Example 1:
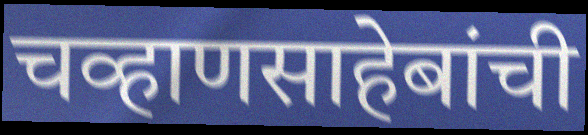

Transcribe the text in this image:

चव्हाणसाहेबांची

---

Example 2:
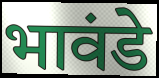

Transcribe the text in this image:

भावंडे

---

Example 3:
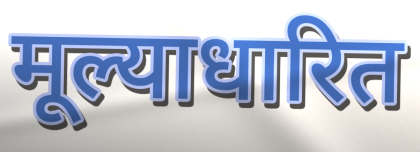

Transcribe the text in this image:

मूल्याधारित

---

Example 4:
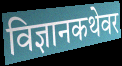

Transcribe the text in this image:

विज्ञानकथेवर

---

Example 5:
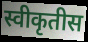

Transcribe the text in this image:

स्वीकृतीस